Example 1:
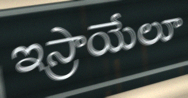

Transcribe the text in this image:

ఇస్రాయేలూ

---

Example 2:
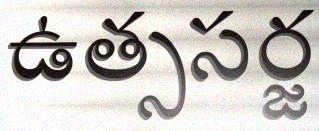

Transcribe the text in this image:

ఉత్ససర్జ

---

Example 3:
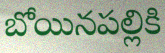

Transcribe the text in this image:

బోయినపల్లికి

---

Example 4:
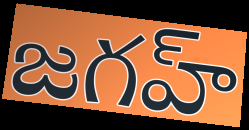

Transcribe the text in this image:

జగహ్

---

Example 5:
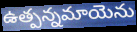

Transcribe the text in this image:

ఉత్పన్నమాయెను